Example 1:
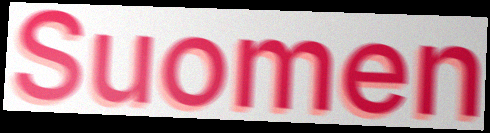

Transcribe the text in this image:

Suomen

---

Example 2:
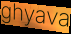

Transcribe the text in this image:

ghyava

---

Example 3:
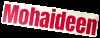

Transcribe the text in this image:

Mohaideen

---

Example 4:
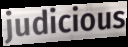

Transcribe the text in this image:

judicious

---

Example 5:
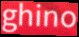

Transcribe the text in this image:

ghino